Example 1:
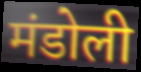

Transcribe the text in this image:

मंडोली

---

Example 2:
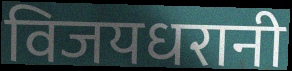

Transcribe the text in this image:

विजयधरानी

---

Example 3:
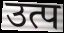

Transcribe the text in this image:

उत्प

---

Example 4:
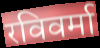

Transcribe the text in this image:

रविवर्मा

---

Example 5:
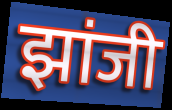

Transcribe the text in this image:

झांजी